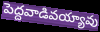
పెద్దవాడివయ్యావు